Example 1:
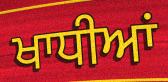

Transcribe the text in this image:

ਖਾਧੀਆਂ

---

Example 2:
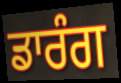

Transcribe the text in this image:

ਡਾਰੰਗ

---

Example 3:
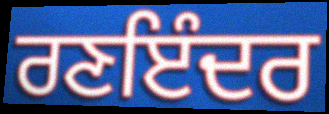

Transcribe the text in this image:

ਰਣਇੰਦਰ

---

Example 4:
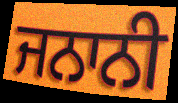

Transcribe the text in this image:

ਜਨਾਨੀ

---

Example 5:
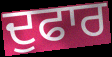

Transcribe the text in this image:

ਦੁਫਾਰ